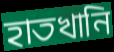
হাতখানি